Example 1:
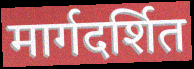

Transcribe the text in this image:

मार्गदर्शित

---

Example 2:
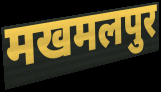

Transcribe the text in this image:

मखमलपुर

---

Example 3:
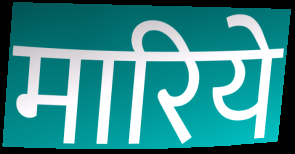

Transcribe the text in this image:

मारिये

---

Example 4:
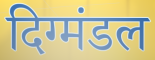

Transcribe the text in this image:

दिग्मंडल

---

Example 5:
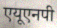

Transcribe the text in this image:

एयूएनपी